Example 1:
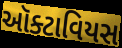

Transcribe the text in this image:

ઑક્ટાવિયસ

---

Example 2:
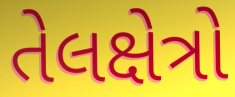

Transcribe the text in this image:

તેલક્ષેત્રો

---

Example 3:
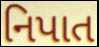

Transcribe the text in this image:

નિપાત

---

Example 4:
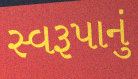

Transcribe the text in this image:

સ્વરૂપાનું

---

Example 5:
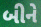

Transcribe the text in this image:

બીને